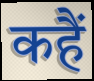
कहैं